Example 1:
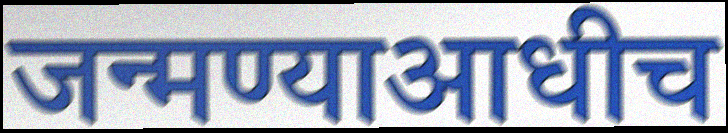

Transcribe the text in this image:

जन्मण्याआधीच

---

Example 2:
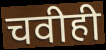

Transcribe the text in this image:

चवीही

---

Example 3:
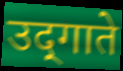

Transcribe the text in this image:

उद्‌गाते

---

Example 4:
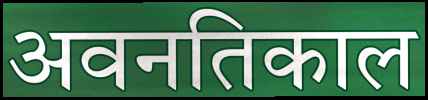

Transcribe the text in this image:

अवनतिकाल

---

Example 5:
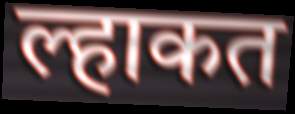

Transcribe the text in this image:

ल्हाकत